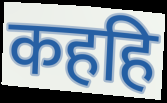
कहहि